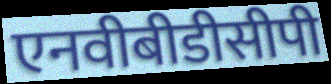
एनवीबीडीसीपी